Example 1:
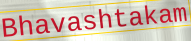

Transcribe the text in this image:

Bhavashtakam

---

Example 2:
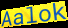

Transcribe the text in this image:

Aalok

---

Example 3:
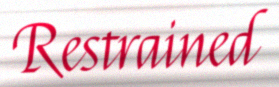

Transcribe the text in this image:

Restrained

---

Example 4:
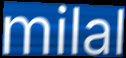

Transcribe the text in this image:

milal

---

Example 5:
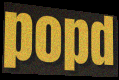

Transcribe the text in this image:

popd